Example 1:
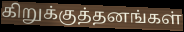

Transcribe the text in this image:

கிறுக்குத்தனங்கள்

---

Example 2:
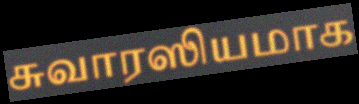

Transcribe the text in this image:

சுவாரஸியமாக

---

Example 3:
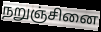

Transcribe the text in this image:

நறுஞ்சினை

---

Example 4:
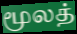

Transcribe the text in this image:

மூலத்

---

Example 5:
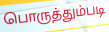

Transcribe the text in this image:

பொருத்தும்படி